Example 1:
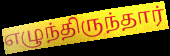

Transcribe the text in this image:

எழுந்திருந்தார்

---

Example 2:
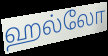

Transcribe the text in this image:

ஹல்லோ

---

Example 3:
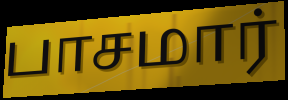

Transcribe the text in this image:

பாசமார்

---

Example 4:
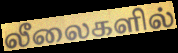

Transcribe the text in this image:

லீலைகளில்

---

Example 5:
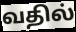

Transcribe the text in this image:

வதில்